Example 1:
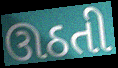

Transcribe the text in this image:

ઊઠતી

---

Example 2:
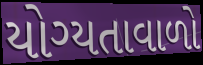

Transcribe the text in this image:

યોગ્યતાવાળો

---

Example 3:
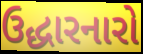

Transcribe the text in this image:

ઉદ્ધારનારો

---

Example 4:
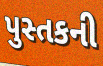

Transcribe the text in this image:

પુસ્તકની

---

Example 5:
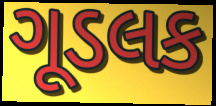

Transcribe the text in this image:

ગૂડલક